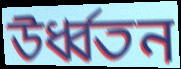
উর্ধ্বতন